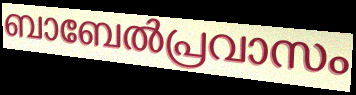
ബാബേൽപ്രവാസം